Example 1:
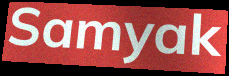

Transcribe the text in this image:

Samyak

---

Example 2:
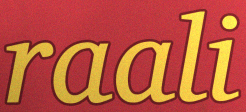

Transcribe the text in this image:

raali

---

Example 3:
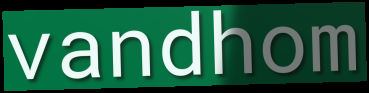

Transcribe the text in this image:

vandhom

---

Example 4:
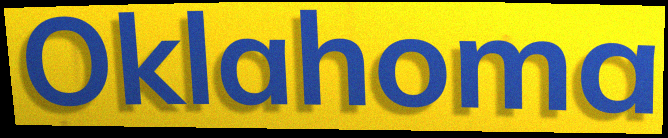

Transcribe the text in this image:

Oklahoma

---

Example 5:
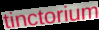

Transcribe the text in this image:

tinctorium